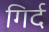
गिर्द